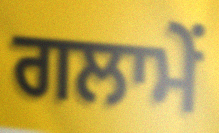
ਗਲਾਮੇਂ